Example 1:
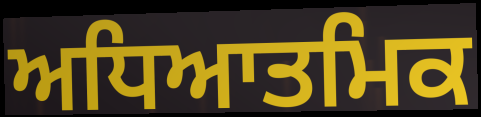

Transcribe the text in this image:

ਅਧਿਆਤਮਿਕ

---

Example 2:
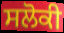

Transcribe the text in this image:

ਸਲੋਕੀ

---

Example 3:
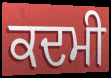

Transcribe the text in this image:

ਕਦਮੀ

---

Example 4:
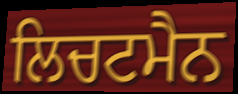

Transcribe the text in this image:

ਲਿਚਟਮੈਨ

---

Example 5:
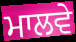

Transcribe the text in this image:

ਮਾਲਵੇ